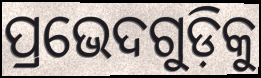
ପ୍ରଭେଦଗୁଡ଼ିକୁ